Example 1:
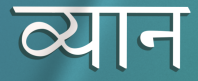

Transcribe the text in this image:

व्यान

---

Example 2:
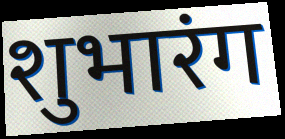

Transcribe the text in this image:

शुभारंग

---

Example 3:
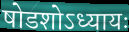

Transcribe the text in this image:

षोडशोऽध्यायः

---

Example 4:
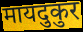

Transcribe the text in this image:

मायदुकुर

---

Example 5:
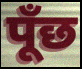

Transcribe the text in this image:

पूँछ